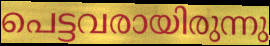
പെട്ടവരായിരുന്നു